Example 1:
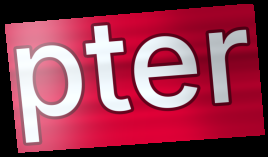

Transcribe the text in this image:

pter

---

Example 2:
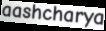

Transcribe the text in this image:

aashcharya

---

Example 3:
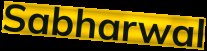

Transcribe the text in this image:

Sabharwal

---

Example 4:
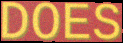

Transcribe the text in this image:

DOES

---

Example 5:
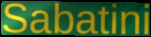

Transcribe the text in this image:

Sabatini